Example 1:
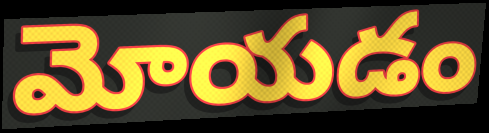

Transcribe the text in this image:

మోయడం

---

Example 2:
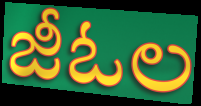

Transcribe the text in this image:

జీఓల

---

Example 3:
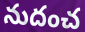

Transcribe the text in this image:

నుదంచ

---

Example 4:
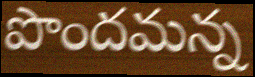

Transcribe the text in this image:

పొందమన్న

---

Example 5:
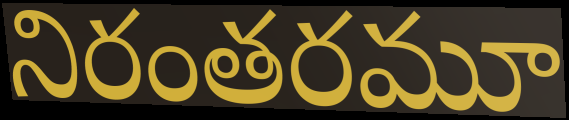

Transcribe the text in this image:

నిరంతరమూ